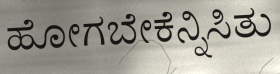
ಹೋಗಬೇಕೆನ್ನಿಸಿತು